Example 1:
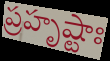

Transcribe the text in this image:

ప్రహృష్టాః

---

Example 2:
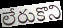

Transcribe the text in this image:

లేరుకొని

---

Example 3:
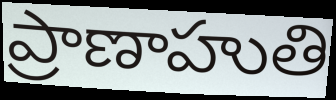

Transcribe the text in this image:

ప్రాణాహుతి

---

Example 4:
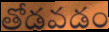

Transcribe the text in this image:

తోడవడం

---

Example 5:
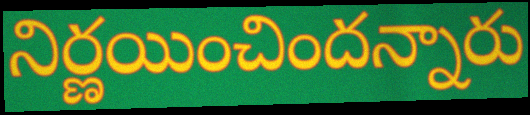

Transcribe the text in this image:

నిర్ణయించిందన్నారు